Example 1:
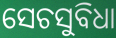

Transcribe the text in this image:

ସେଚସୁବିଧା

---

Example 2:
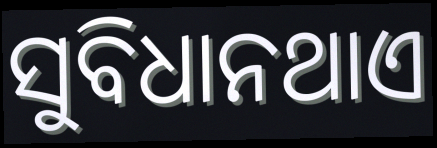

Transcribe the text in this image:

ସୁବିଧାନଥାଏ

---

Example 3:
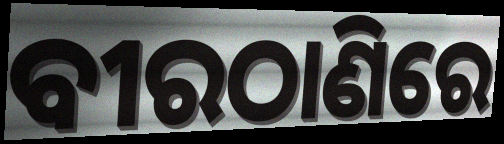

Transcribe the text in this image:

ବୀରଠାଣିରେ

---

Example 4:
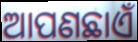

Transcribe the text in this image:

ଆପଣଛାଏଁ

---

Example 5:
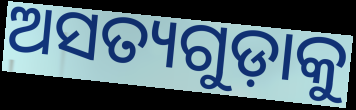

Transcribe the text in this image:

ଅସତ୍ୟଗୁଡ଼ାକୁ